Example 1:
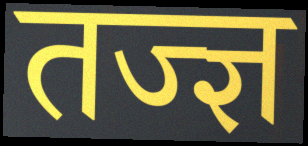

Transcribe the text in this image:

तज्ज्ञ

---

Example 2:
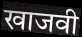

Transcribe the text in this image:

खाजवी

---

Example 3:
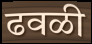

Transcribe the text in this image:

ढवळी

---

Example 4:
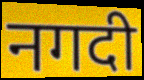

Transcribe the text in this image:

नगदी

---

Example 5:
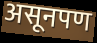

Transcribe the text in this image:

असूनपण